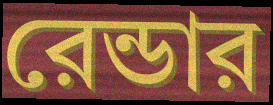
রেন্ডার